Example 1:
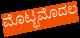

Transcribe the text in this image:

ಮೊಟ್ಟಮೊದಲ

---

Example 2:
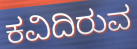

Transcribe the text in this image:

ಕವಿದಿರುವ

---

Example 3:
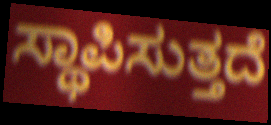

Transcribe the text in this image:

ಸ್ಥಾಪಿಸುತ್ತದೆ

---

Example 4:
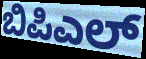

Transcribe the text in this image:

ಬಿಪಿಎಲ್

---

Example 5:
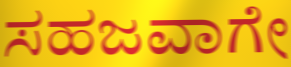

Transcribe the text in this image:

ಸಹಜವಾಗೇ